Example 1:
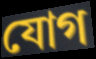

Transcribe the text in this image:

যোগ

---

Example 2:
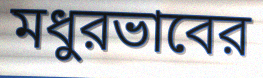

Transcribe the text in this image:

মধুরভাবের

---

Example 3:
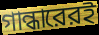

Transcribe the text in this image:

গান্ধারেরই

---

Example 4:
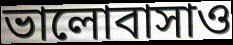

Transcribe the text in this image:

ভালোবাসাও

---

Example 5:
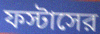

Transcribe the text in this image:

ফস্টাসের